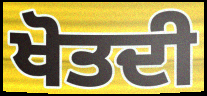
ਖੋਤਦੀ